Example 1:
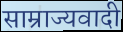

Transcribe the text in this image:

साम्राज्यवादी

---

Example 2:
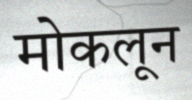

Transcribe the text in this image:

मोकलून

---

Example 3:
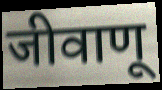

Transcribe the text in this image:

जीवाणू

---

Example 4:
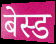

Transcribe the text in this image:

बेस्ड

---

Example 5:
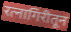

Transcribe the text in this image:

रत्नागिरीतून